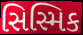
સિસ્મિક